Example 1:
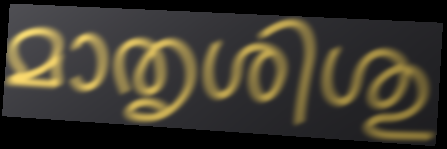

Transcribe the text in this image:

മാതൃശിശു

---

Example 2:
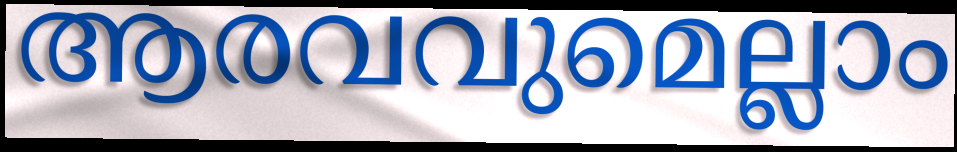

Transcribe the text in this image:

ആരവവുമെല്ലാം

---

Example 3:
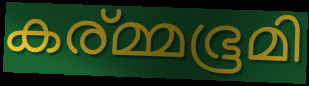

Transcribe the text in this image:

കര്മ്മഭൂമി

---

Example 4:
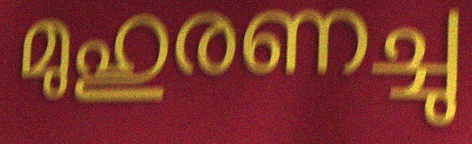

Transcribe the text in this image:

മുഹുരണച്ചു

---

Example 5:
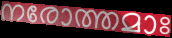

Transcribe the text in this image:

നരോത്തമാഃ